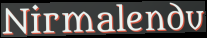
Nirmalendu